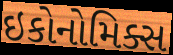
ઇકોનોમિક્સ